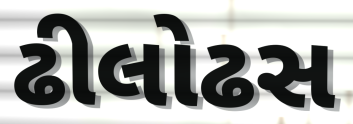
ઢીલોઢસ